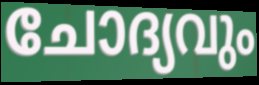
ചോദ്യവും